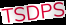
TSDPS